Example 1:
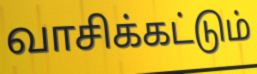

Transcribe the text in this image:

வாசிக்கட்டும்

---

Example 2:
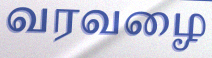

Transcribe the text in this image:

வரவழை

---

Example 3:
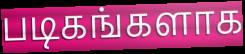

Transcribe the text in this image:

படிகங்களாக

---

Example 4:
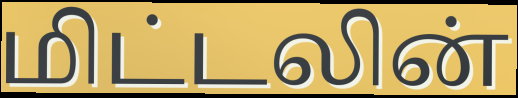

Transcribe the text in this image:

மிட்டலின்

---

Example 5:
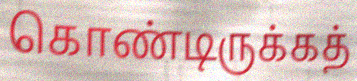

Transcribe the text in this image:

கொண்டிருக்கத்